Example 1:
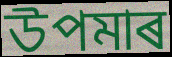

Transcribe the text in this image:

উপমাৰ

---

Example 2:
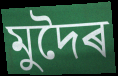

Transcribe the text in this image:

মুদৈৰ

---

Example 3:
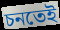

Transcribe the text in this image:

চনতেই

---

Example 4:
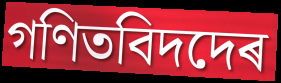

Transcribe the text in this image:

গণিতবিদদেৰ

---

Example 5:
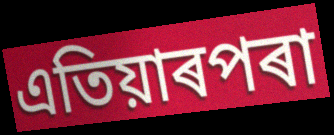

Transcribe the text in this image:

এতিয়াৰপৰা